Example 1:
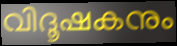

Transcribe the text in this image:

വിദൂഷകനും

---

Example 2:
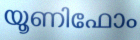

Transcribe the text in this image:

യൂണിഫോം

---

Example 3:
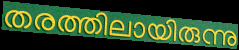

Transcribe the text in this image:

തരത്തിലായിരുന്നു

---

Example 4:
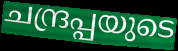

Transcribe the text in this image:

ചന്ദ്രപ്പയുടെ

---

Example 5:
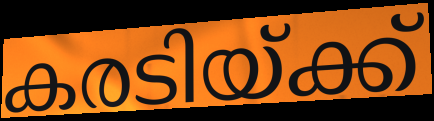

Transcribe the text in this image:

കരടിയ്ക്ക്